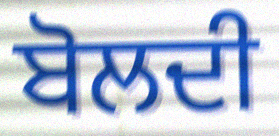
ਬੋਲਦੀ